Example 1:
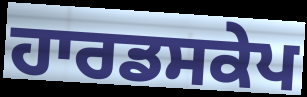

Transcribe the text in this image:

ਹਾਰਡਸਕੇਪ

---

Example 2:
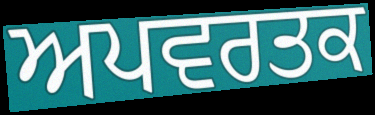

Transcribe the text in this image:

ਅਪਵਰਤਕ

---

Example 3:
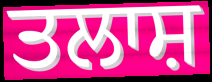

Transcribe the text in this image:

ਤਲਾਸ਼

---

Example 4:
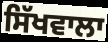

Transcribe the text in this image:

ਸਿੱਖਵਾਲਾ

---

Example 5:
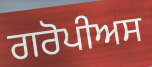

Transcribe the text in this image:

ਗਰੋਪੀਅਸ